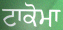
ਟਾਕੋਮਾ